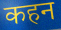
कहन